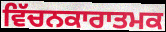
ਵਿੱਚਨਕਾਰਾਤਮਕ